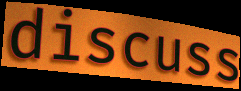
discuss